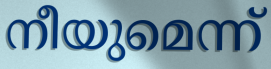
നീയുമെന്ന്